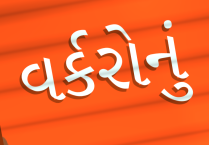
વર્કરોનું